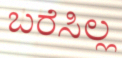
ಬರೆಸಿಲ್ಲ